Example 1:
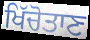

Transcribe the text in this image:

ਖਿੱਚੋਤਾਣ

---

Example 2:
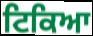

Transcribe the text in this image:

ਟਿਕਿਆ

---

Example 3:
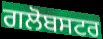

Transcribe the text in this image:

ਗਲੋਬਸਟਰ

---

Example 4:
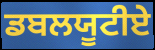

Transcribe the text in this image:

ਡਬਲਯੂਟੀਏ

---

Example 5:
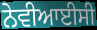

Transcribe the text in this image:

ਨੇਵੀਆਈਸੀ